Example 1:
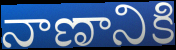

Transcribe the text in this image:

నాణానికి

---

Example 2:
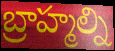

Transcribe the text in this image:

బ్రాహ్మల్ని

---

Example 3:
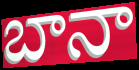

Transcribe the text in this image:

బానా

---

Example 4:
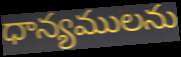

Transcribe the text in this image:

ధాన్యములను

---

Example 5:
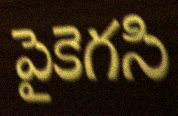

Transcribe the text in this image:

పైకెగసి